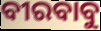
ବୀରବାବୁ